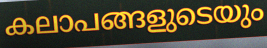
കലാപങ്ങളുടെയും